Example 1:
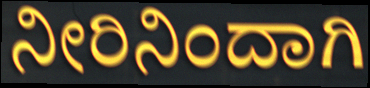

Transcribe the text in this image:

ನೀರಿನಿಂದಾಗಿ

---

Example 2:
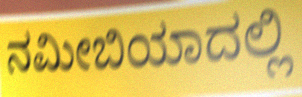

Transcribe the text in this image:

ನಮೀಬಿಯಾದಲ್ಲಿ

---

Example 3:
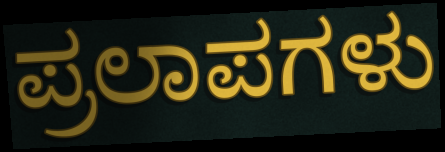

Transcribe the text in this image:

ಪ್ರಲಾಪಗಳು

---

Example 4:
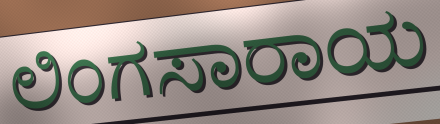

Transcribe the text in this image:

ಲಿಂಗಸಾರಾಯ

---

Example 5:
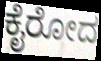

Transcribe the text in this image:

ಕೈರೋದ